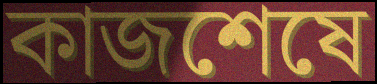
কাজশেষে